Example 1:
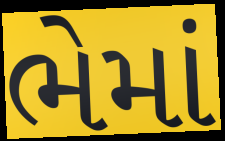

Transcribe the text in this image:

ભેમાં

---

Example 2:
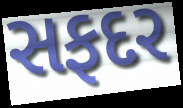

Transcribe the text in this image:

સફદર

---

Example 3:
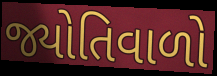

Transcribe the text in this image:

જ્યોતિવાળો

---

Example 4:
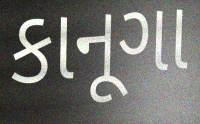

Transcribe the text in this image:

કાનૂગા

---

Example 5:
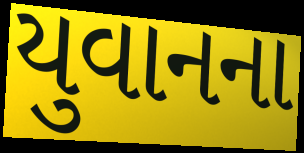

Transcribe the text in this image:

યુવાનના